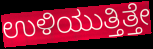
ಉಳಿಯುತ್ತಿತ್ತೇ